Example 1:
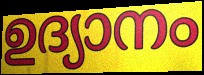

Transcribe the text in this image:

ഉദ്യാനം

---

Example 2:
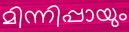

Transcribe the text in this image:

മിന്നിപ്പായും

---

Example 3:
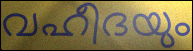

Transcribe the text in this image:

വഹീദയും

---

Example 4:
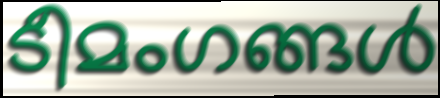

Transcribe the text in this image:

ടീമംഗങ്ങൾ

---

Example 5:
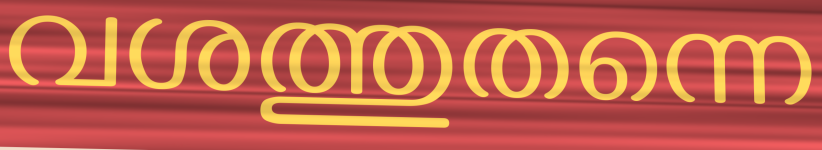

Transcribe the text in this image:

വശത്തുതന്നെ